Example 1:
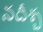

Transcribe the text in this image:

నదీశ్చ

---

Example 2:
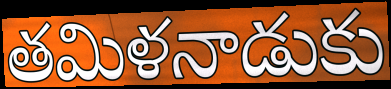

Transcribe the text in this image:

తమిళనాడుకు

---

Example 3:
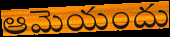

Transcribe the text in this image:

ఆమెయందు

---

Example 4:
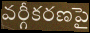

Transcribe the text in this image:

వర్గీకరణపై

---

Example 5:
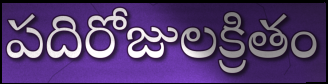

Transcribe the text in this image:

పదిరోజులక్రితం